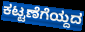
ಕಟ್ಟಣೆಗೆಯ್ದದ